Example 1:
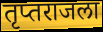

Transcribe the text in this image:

तृप्तराजला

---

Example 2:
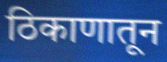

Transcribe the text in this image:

ठिकाणातून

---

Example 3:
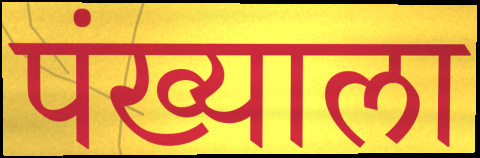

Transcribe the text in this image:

पंख्याला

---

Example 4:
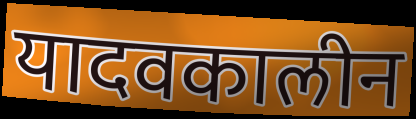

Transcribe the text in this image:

यादवकालीन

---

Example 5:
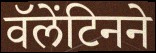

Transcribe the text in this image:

वॅलेंटिनने